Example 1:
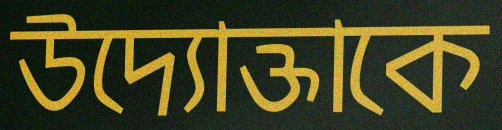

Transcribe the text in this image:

উদ্যোক্তাকে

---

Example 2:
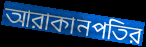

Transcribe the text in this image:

আরাকানপতির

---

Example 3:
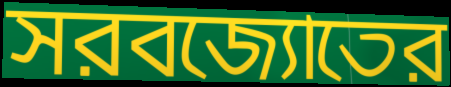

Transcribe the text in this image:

সরবজ্যোতের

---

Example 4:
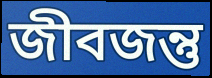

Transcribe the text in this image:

জীবজন্তু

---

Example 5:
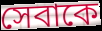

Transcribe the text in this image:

সেবাকে